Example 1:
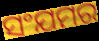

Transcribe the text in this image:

ସଂଯମର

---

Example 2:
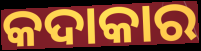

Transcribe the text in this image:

କଦାକାର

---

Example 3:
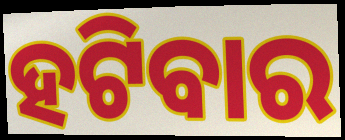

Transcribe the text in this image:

ହଟିବାର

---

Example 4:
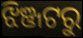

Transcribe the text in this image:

ଝିଞ୍ଜଟରୁ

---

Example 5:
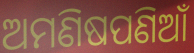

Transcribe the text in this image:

ଅମଣିଷପଣିଆଁ